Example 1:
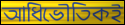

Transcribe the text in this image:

আধিভৌতিকই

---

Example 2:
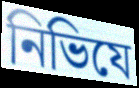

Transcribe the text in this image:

নিভিযে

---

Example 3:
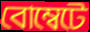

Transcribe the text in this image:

বোম্বেটে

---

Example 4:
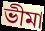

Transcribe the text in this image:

ভীমা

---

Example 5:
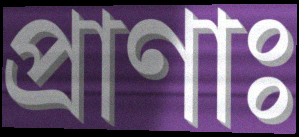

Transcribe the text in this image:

প্রাণাঃ